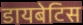
डायबेटिस